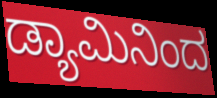
ಡ್ಯಾಮಿನಿಂದ